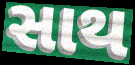
સાથ